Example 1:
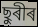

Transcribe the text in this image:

ছুৰীৰ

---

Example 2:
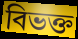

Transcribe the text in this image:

বিভক্ত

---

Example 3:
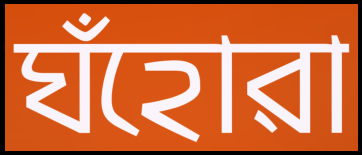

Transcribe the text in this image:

ঘঁহোৱা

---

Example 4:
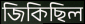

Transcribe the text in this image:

জিকিছিল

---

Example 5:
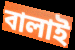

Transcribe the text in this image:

বালাই